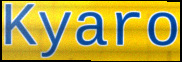
Kyaro